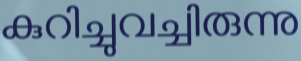
കുറിച്ചുവച്ചിരുന്നു